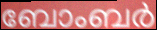
ബോംബർ